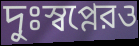
দুঃস্বপ্নেরও